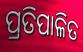
ପ୍ରତିପାଳିତ